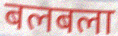
बलबला